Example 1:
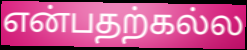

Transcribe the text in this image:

என்பதற்கல்ல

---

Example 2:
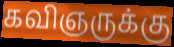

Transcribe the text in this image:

கவிஞருக்கு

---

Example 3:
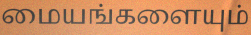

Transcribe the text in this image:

மையங்களையும்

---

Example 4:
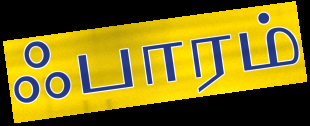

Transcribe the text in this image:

ஃபாரம்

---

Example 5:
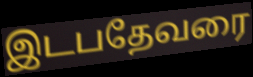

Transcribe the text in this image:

இடபதேவரை